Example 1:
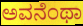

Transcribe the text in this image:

ಅವನೆಂಥಾ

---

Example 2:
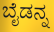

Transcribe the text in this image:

ಬೈಡನ್ನ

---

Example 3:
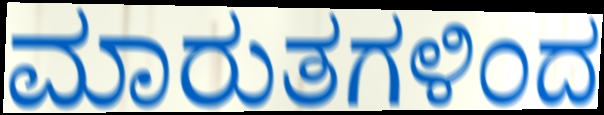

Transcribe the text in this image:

ಮಾರುತಗಳಿಂದ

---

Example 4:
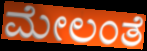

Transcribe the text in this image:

ಮೇಲಂತೆ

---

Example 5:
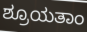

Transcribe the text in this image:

ಶ್ರೂಯತಾಂ